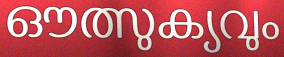
ഔത്സുക്യവും